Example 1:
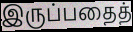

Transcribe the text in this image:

இருப்பதைத்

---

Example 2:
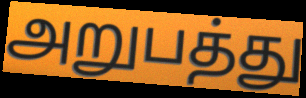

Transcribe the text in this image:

அறுபத்து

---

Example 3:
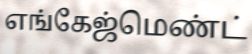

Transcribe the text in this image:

எங்கேஜ்மெண்ட்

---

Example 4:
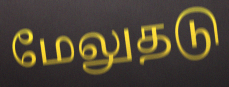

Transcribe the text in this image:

மேலுதடு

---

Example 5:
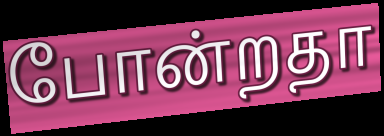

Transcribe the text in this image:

போன்றதா